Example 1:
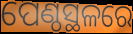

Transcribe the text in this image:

ପେଣ୍ଠସ୍ଥଳରେ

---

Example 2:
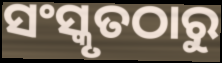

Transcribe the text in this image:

ସଂସ୍କୃତଠାରୁ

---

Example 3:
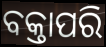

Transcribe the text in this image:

ବକ୍ତାପରି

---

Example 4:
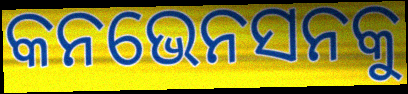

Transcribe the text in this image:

କନଭେନସନକୁ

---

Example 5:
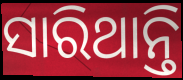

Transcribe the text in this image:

ସାରିଥାନ୍ତି